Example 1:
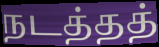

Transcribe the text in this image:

நடத்தத்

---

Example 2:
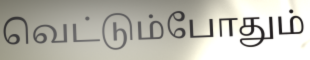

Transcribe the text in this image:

வெட்டும்போதும்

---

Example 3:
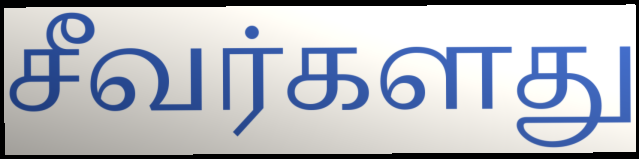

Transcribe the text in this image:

சீவர்களது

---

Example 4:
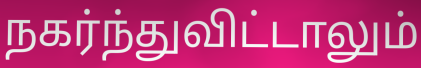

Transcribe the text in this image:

நகர்ந்துவிட்டாலும்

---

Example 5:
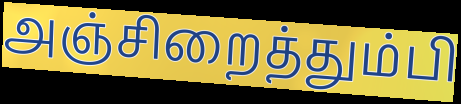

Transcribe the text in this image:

அஞ்சிறைத்தும்பி